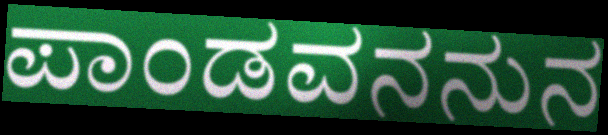
ಪಾಂಡವನನುನ